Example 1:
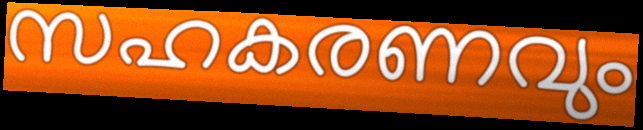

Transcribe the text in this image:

സഹകരണവും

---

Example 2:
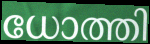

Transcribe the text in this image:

ധോത്തി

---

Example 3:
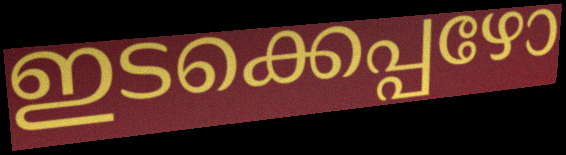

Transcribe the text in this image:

ഇടക്കെപ്പഴോ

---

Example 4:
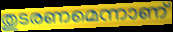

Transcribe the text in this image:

തുടരണമെന്നാണ്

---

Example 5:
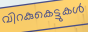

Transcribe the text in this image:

വിറകുകെട്ടുകൾ